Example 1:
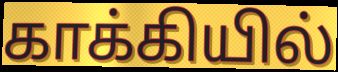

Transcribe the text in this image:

காக்கியில்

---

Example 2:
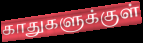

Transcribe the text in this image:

காதுகளுக்குள்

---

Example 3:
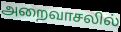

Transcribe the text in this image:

அறைவாசலில்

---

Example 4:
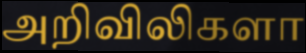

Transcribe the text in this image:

அறிவிலிகளா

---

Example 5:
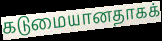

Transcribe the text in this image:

கடுமையானதாகக்